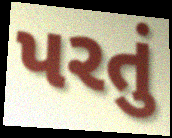
પરતું